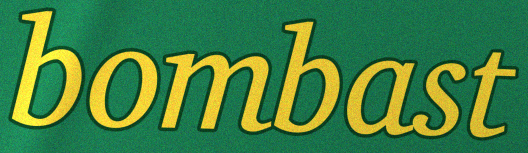
bombast